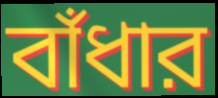
বাঁধার